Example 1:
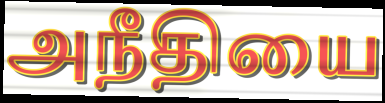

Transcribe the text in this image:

அநீதியை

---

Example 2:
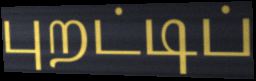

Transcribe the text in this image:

புறட்டிப்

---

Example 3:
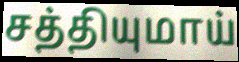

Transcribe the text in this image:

சத்தியுமாய்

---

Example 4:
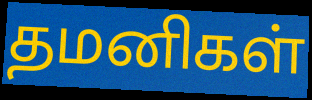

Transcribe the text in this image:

தமனிகள்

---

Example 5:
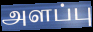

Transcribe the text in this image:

அளப்பு